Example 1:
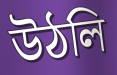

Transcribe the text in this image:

উঠলি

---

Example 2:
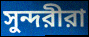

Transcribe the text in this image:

সুন্দরীরা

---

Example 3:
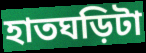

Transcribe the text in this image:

হাতঘড়িটা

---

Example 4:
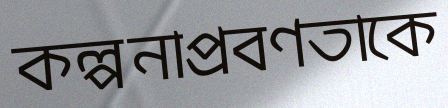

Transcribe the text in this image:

কল্পনাপ্রবণতাকে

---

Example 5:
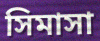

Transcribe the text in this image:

সিমাসা